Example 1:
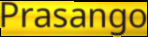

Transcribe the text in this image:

Prasango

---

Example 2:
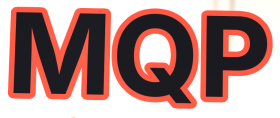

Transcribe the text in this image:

MQP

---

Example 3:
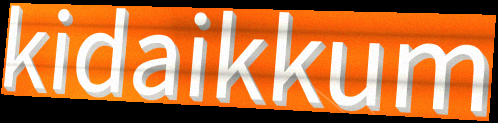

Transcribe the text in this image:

kidaikkum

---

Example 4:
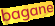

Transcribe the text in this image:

bagane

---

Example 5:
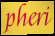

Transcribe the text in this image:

pheri